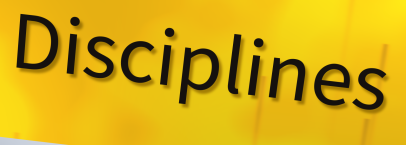
Disciplines